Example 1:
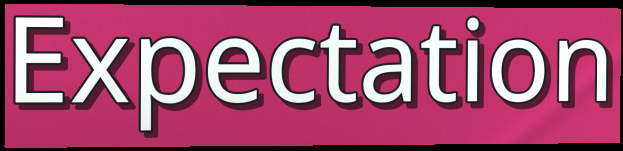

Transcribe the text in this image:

Expectation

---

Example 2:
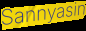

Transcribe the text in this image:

Sannyasin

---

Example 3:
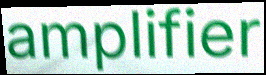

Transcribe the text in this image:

amplifier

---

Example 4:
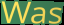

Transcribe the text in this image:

Was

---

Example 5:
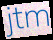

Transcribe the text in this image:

jtm